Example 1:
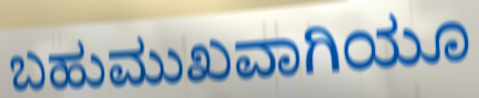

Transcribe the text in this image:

ಬಹುಮುಖವಾಗಿಯೂ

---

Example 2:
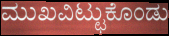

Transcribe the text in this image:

ಮುಖವಿಟ್ಟುಕೊಂಡು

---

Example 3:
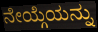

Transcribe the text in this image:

ನೇಯ್ಗೆಯನ್ನು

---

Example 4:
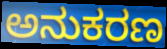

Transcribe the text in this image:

ಅನುಕರಣ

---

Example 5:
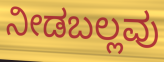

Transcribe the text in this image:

ನೀಡಬಲ್ಲವು